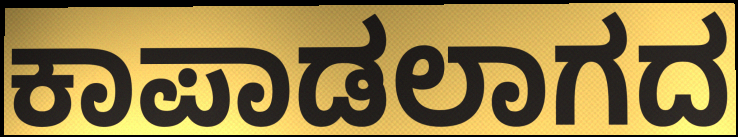
ಕಾಪಾಡಲಾಗದ